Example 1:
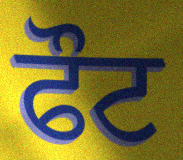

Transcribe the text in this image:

ਫੌਟ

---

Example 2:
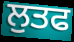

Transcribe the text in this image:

ਲੁਤਫ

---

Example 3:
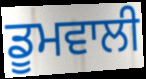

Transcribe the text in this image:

ਡੂਮਵਾਲੀ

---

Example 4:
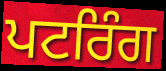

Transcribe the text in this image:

ਪਟਰਿੰਗ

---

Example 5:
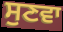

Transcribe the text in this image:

ਸੁਣਵਾ